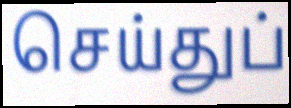
செய்துப்